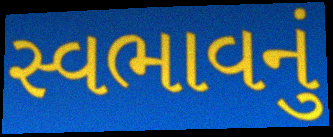
સ્વભાવનું